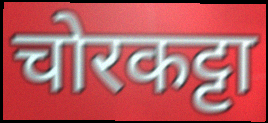
चोरकट्टा